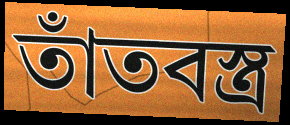
তাঁতবস্ত্র